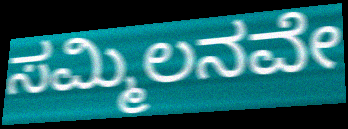
ಸಮ್ಮಿಲನವೇ